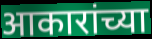
आकारांच्या